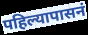
पहिल्यापासनं